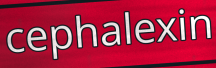
cephalexin